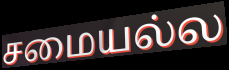
சமையல்ல